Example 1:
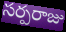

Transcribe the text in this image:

సర్పరాజు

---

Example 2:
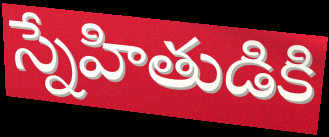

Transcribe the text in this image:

స్నేహితుడికి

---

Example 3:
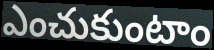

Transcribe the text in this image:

ఎంచుకుంటాం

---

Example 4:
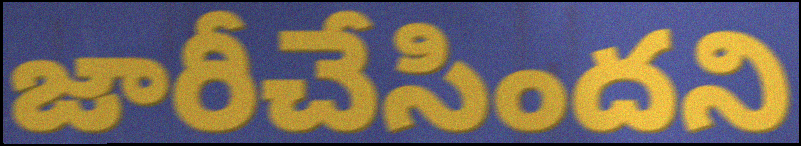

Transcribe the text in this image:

జారీచేసిందని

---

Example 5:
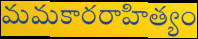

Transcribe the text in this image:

మమకారరాహిత్యం